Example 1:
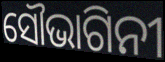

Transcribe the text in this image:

ସୌଭାଗିନୀ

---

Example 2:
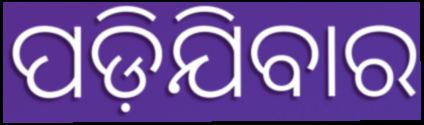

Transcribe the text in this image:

ପଡ଼ିଯିବାର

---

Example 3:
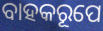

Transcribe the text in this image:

ବାହକରୂପେ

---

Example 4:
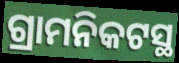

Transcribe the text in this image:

ଗ୍ରାମନିକଟସ୍ଥ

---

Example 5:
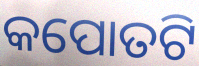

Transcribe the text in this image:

କପୋତଟି